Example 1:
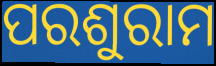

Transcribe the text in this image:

ପରଶୁରାମ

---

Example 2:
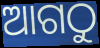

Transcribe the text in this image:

ଆଗଠୁ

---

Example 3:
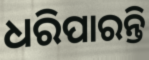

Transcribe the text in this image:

ଧରିପାରନ୍ତି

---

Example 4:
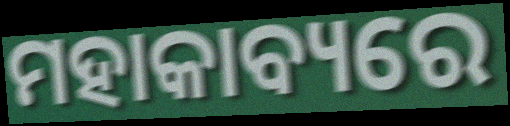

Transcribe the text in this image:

ମହାକାବ୍ୟରେ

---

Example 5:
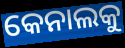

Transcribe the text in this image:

କେନାଲକୁ